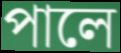
পালে